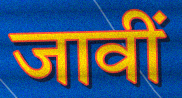
जावीं